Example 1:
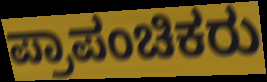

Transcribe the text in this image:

ಪ್ರಾಪಂಚಿಕರು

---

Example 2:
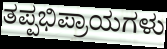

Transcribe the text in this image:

ತಪ್ಪಭಿಪ್ರಾಯಗಳು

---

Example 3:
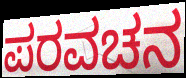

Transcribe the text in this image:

ಪರವಚನ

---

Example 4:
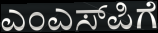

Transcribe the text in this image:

ಎಂಎಸ್‌ಪಿಗೆ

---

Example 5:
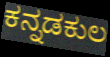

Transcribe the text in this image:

ಕನ್ನಡಕುಲ